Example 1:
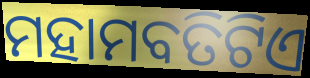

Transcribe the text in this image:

ମହାମବତିଟିଏ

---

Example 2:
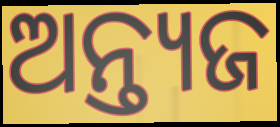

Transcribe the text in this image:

ଅନ୍ତ୍ୟଜ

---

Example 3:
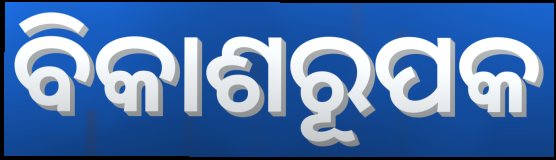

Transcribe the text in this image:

ବିକାଶରୂପକ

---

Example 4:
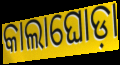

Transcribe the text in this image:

କାଲାଘୋଡ଼ା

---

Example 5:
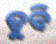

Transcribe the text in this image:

ଡୁବି